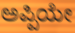
ಅಪ್ಪಿಯೇ